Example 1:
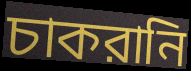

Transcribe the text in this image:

চাকরানি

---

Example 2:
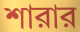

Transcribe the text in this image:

শারার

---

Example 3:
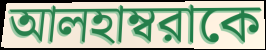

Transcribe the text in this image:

আলহাম্বরাকে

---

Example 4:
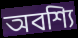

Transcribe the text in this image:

অবশ্যি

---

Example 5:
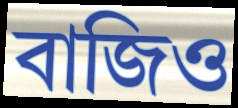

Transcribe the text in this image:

বাজিও